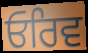
ਓਰਿਵ